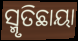
ସ୍ମୃତିଛାୟା